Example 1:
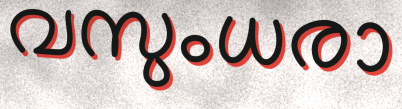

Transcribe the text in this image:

വസുംധരാ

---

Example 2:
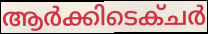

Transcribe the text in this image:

ആർക്കിടെക്ചർ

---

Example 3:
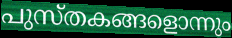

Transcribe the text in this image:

പുസ്തകങ്ങളൊന്നും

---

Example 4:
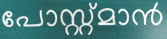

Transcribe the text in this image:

പോസ്റ്റ്മാൻ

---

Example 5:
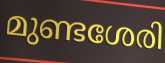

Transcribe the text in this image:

മുണ്ടശേരി